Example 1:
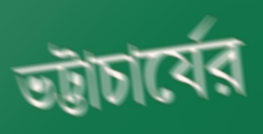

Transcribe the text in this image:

ভট্টাচার্যের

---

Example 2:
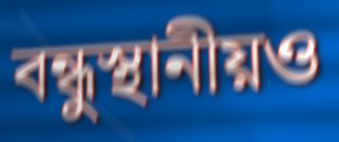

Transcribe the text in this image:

বন্ধুস্থানীয়ও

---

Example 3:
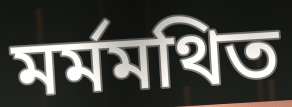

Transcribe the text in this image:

মর্মমথিত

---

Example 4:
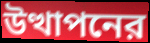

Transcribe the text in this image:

উত্থাপনের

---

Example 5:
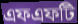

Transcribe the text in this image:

এফএফটি